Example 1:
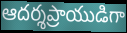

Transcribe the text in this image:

ఆదర్శప్రాయుడిగా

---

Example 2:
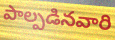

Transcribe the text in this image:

పాల్పడినవారి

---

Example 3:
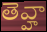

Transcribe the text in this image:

తెవ్హా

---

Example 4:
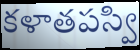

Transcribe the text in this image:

కళాతపస్వి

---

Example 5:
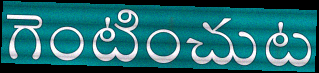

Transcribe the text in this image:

గెంటించుట